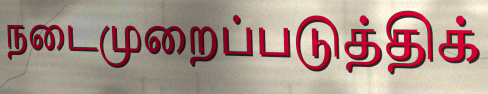
நடைமுறைப்படுத்திக்